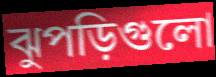
ঝুপড়িগুলো